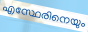
എസ്ഥേരിനെയും